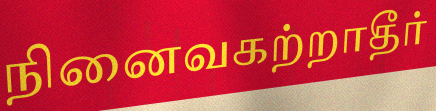
நினைவகற்றாதீர்